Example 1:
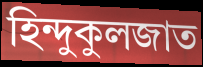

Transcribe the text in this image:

হিন্দুকুলজাত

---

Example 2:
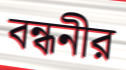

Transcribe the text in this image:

বন্ধনীর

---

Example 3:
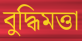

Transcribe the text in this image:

বুদ্ধিমত্তা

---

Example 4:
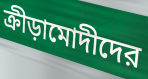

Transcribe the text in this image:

ক্রীড়ামোদীদের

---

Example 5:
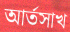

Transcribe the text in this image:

আর্তসাখ